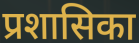
प्रशासिका